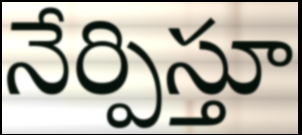
నేర్పిస్తూ